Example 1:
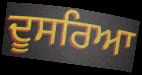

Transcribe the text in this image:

ਦੂਸਰਿਆ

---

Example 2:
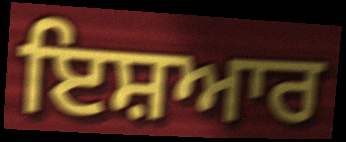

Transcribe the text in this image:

ਇਸ਼ਆਰ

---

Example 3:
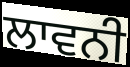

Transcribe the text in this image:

ਲਾਵਨੀ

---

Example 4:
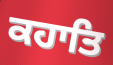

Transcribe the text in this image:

ਕਹਾਤਿ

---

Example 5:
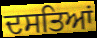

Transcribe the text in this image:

ਦਸਤਿਆਂ